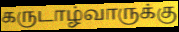
கருடாழ்வாருக்கு